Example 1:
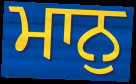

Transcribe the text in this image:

ਮਾਨੁ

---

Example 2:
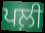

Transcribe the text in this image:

ਪਲ਼ੀ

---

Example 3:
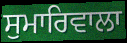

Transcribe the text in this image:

ਸੁਮਾਰਿਵਾਲਾ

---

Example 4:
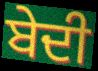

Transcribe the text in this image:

ਬੇਦੀ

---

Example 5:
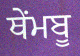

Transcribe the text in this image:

ਥੇਂਮਬੂ